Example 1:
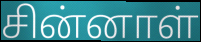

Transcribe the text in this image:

சின்னாள்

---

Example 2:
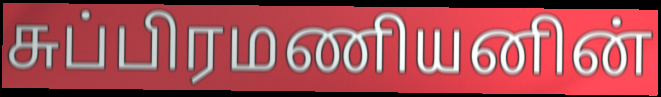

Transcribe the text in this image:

சுப்பிரமணியனின்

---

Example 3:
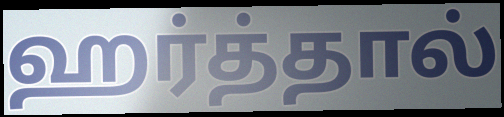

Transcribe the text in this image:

ஹர்த்தால்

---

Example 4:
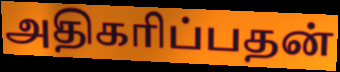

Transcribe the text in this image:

அதிகரிப்பதன்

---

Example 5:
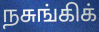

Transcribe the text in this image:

நசுங்கிக்